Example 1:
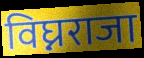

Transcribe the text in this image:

विघ्नराजा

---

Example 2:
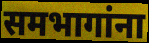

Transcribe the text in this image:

समभागांना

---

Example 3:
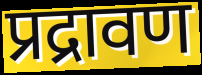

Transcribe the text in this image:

प्रद्रावण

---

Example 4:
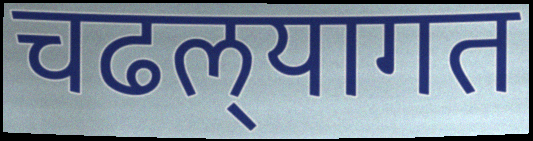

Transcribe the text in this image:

चढल्यागत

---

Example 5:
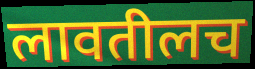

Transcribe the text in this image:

लावतीलच